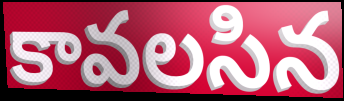
కావలసిన